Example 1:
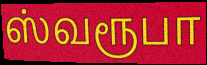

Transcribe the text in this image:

ஸ்வரூபா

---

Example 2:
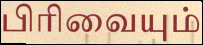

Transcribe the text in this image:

பிரிவையும்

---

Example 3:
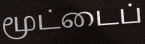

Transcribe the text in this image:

மூட்டைப்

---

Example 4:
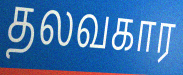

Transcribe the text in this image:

தலவகார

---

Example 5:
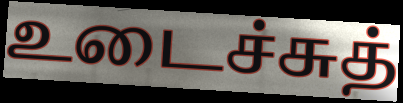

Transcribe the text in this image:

உடைச்சுத்